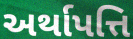
અર્થાપત્તિ